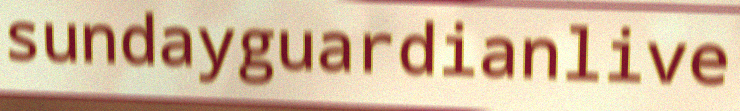
sundayguardianlive